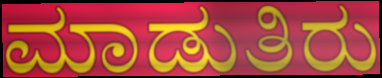
ಮಾಡುತಿರು